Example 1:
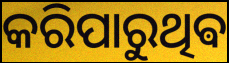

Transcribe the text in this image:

କରିପାରୁଥିଵ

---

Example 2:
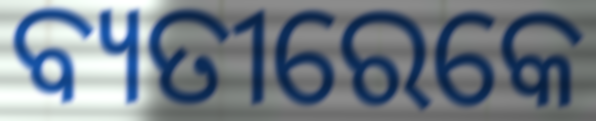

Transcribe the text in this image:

ବ୍ୟତୀରେକେ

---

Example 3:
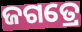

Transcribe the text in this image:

ଜଗତ୍ରେ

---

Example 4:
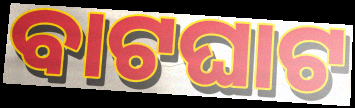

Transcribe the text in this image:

ବାଟଘାଟ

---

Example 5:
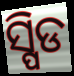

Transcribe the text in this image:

ସ୍ପିଡ